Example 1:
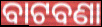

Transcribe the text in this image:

ବାଟବଣା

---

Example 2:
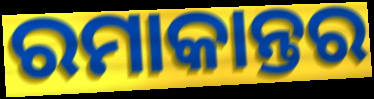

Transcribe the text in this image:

ରମାକାନ୍ତର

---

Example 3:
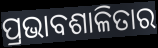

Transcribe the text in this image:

ପ୍ରଭାବଶାଳିତାର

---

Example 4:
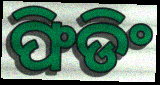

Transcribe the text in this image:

ଫିଡିଂ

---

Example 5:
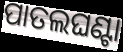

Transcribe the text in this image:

ପାତଲଘଣ୍ଟା